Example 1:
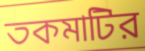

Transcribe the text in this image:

তকমাটির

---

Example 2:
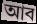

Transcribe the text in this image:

আব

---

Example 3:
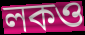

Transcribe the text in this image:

লকও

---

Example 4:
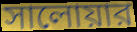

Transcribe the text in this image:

সালোয়ার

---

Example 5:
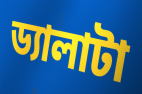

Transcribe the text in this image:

ড্যালাটা